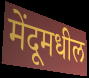
मेंदूमधील